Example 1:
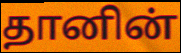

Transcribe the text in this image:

தானின்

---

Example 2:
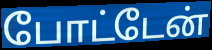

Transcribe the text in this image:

போட்டேன்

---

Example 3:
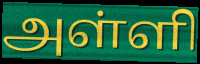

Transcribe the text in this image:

அள்ளி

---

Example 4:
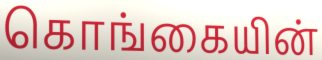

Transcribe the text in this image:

கொங்கையின்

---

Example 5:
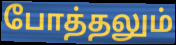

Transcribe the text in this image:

போத்தலும்